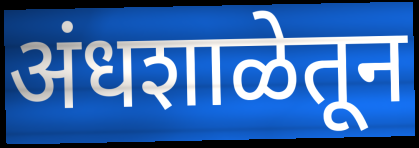
अंधशाळेतून